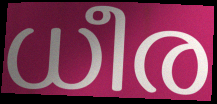
ധീര